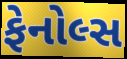
ફેનોલ્સ